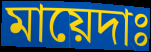
মায়েদাঃ